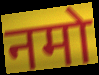
नमो